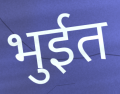
भुईत